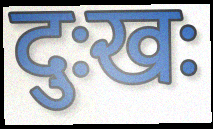
दुःखः